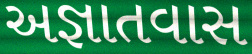
અજ્ઞાતવાસ